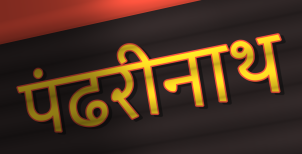
पंढरीनाथ